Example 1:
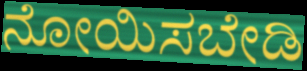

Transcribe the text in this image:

ನೋಯಿಸಬೇಡಿ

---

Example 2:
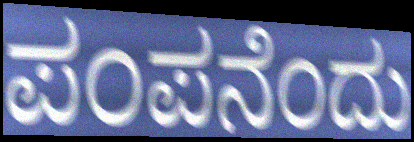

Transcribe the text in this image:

ಪಂಪನೆಂದು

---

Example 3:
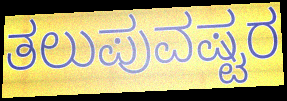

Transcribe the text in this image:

ತಲುಪುವಷ್ಟರ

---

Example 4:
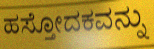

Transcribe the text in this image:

ಹಸ್ತೋದಕವನ್ನು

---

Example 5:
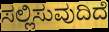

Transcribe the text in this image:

ಸಲ್ಲಿಸುವುದಿದೆ